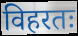
विहरतः